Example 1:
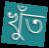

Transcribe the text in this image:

খুঁত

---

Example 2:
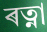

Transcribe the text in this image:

ৰত্না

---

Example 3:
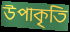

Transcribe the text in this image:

উপাকৃতি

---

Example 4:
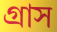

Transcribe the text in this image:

গ্ৰাস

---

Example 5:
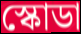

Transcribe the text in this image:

স্কোডা